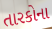
તારકોના